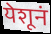
येशूनं